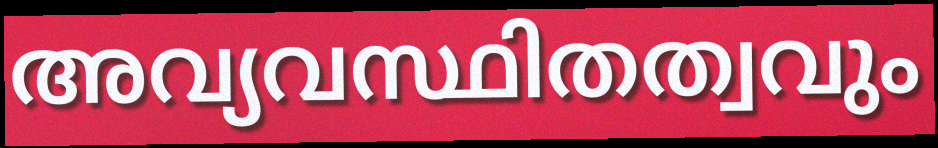
അവ്യവസ്ഥിതത്വവും